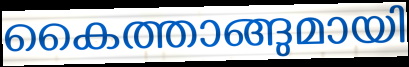
കൈത്താങ്ങുമായി